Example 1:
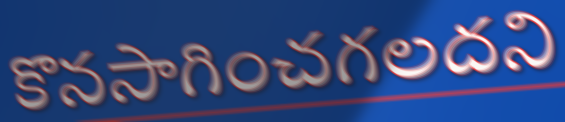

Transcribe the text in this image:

కొనసాగించగలదని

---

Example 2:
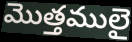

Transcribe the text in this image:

మొత్తములై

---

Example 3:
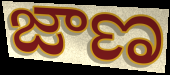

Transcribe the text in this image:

జాణ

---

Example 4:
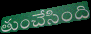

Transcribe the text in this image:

తుంచేసింది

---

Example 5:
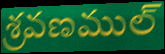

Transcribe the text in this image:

శ్రవణముల్